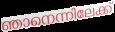
ഞാനെന്നിലേക്ക്